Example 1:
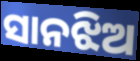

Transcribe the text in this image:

ସାନଝିଅ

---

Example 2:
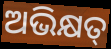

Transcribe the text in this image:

ଅଭିକ୍ଷତ୍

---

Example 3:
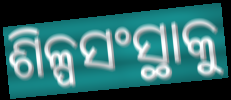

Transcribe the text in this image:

ଶିଳ୍ପସଂସ୍ଥାକୁ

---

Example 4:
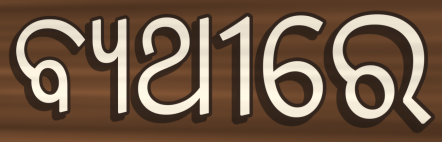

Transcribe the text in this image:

ବ୍ୟଥୀରେ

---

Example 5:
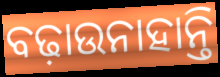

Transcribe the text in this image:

ବଢ଼ାଉନାହାନ୍ତି